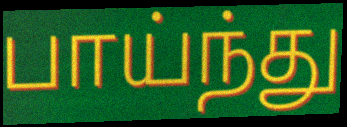
பாய்ந்து